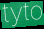
tyto